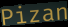
Pizan